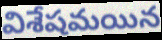
విశేషమయిన